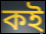
কই